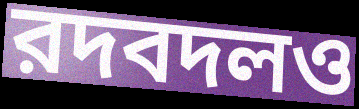
রদবদলও